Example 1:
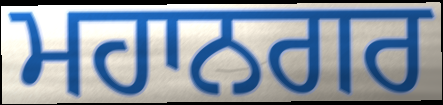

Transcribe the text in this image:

ਮਹਾਨਗਰ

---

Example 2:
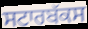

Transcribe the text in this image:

ਸਟਾਰਬੱਕਸ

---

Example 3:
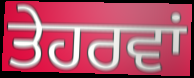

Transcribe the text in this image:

ਤੇਹਰਵਾਂ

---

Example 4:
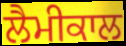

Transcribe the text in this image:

ਲੈਮੀਕਾਲ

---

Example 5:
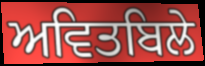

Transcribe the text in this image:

ਅਵਿਤਬਿਲੇ